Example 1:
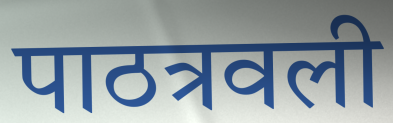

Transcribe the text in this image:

पाठत्रवली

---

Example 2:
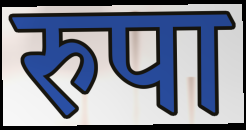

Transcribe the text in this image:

रुपा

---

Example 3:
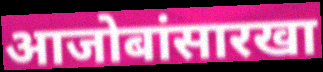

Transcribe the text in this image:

आजोबांसारखा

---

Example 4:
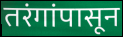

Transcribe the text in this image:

तरंगांपासून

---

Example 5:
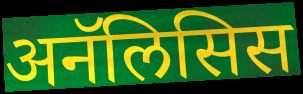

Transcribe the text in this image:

अनॅलिसिस